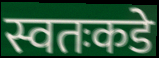
स्वतःकडे